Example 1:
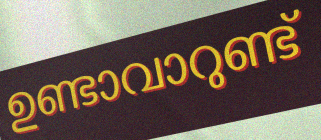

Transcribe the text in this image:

ഉണ്ടാവാറുണ്ട്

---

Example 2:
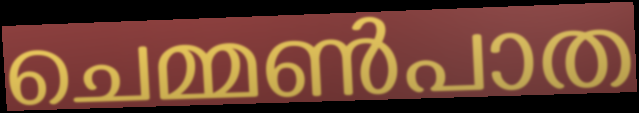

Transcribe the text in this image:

ചെമ്മൺപാത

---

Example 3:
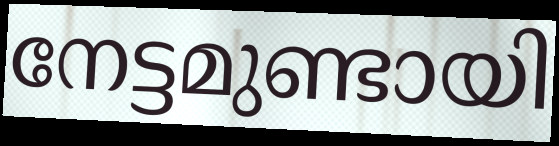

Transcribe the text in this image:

നേട്ടമുണ്ടായി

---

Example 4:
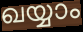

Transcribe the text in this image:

ഖയ്യാം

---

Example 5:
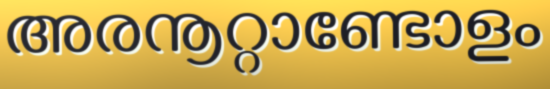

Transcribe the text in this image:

അരനൂറ്റാണ്ടോളം